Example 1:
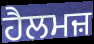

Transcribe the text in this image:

ਹੈਲਮਜ਼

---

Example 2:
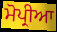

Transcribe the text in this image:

ਮੋਪ੍ਰੀਆ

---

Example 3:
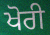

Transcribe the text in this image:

ਖੋਰੀ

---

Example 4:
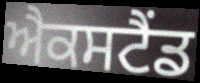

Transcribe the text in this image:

ਐਕਸਟੈਂਡ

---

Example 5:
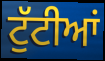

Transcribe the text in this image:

ਟੁੱਟੀਆਂ